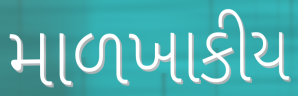
માળખાકીય